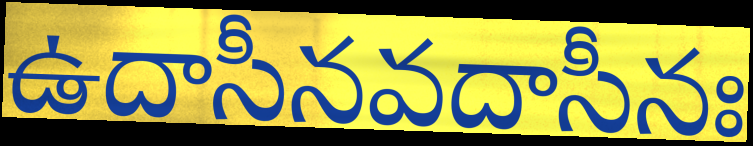
ఉదాసీనవదాసీనః